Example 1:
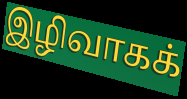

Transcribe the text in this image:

இழிவாகக்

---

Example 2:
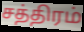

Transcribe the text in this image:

சத்திரம்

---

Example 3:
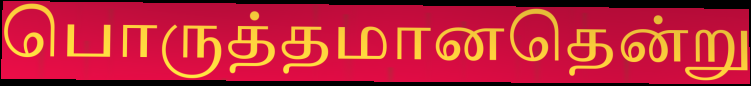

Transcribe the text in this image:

பொருத்தமானதென்று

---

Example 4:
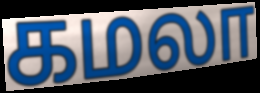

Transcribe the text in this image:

கமலா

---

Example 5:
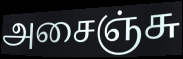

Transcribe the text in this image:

அசைஞ்சு